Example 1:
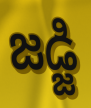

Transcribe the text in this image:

జడ్జి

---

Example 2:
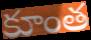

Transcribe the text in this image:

కూంత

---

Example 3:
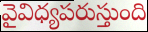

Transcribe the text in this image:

వైవిధ్యపరుస్తుంది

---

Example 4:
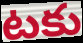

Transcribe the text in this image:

టకు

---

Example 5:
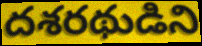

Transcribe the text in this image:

దశరథుడిని